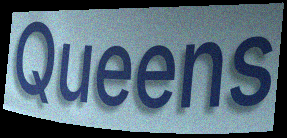
Queens